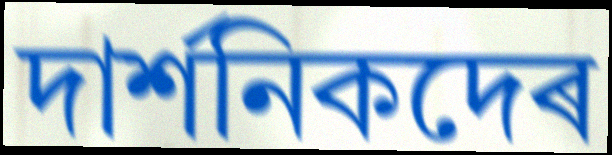
দাৰ্শনিকদেৰ